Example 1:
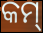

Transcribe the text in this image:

କମ୍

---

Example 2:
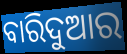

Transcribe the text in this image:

ବାରିଦୁଆର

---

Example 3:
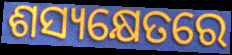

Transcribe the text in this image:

ଶସ୍ୟକ୍ଷେତରେ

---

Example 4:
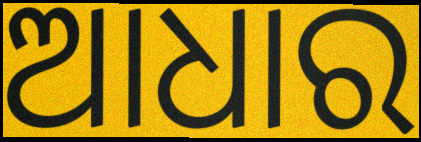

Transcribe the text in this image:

ଆଧାର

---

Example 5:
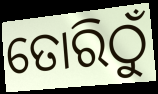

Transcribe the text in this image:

ତୋରିଠୁଁ